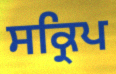
ਸਕ੍ਰਿਪ